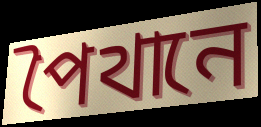
পৈথানে